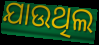
ଯାଉଥିଲ